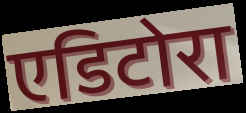
एडिटोरा